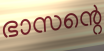
ഭാസന്റെ